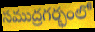
సముద్రగర్భంలో